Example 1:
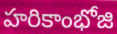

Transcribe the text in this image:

హరికాంభోజి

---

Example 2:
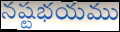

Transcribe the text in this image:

నష్టభయము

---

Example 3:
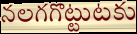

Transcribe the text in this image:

నలగగొట్టుటకు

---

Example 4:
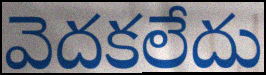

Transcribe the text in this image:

వెదకలేదు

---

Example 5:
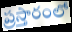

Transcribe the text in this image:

ప్రస్తారంలో